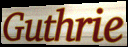
Guthrie